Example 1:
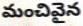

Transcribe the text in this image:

మంచివైన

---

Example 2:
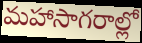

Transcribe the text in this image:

మహాసాగరాల్లో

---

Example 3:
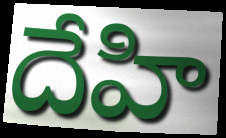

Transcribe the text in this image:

దేహి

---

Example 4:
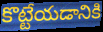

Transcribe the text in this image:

కొట్టేయడానికి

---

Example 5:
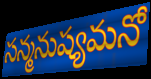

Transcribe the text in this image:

సన్మనుష్యమనో